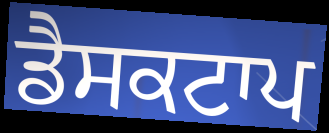
ਡੈਸਕਟਾਪ